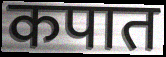
कपात